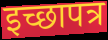
इच्छापत्र